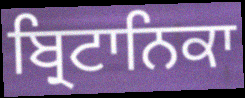
ਬ੍ਰਿਟਾਨਿਕਾ